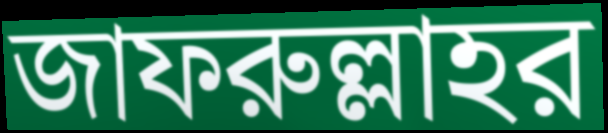
জাফরুল্লাহর